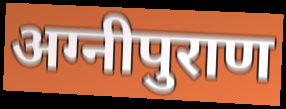
अग्नीपुराण